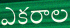
ఎకరాల